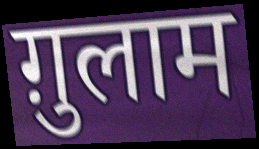
ग़ुलाम